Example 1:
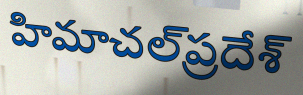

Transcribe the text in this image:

హిమాచల్‌ప్రదేశ్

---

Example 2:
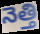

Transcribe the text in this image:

నెత్తి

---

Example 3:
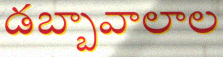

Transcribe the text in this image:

డబ్బావాలాల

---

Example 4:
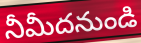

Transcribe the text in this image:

నీమీదనుండి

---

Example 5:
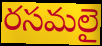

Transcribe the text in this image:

రసమలై